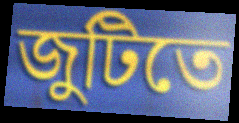
জুটিতে